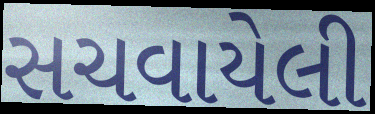
સચવાયેલી